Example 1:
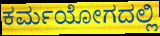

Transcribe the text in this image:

ಕರ್ಮಯೋಗದಲ್ಲಿ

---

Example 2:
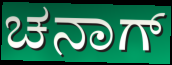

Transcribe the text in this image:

ಚನಾಗ್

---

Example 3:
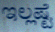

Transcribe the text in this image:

ಇಲ್ಲಷ್ಟೆ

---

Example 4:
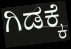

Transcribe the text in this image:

ಗಿಡಕ್ಕೆ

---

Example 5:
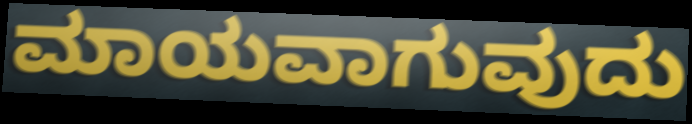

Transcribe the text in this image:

ಮಾಯವಾಗುವುದು